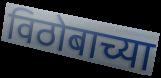
विठोबाच्या